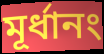
মূর্ধানং